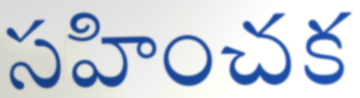
సహించక